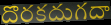
దొరకదుగదా